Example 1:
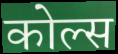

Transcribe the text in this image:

कोल्स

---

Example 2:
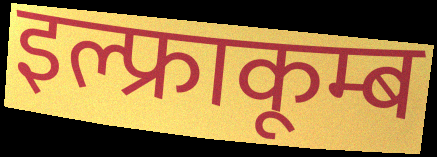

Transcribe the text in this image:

इल्फ्राकूम्ब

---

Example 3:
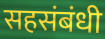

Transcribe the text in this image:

सहसंबंधी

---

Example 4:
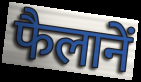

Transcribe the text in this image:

फैलानें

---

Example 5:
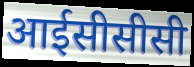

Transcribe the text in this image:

आईसीसीसी